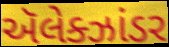
ઍલેક્ઝાંડર